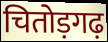
चितोड़गढ़